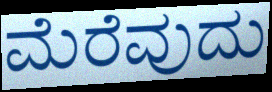
ಮೆರೆವುದು